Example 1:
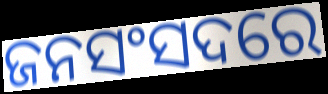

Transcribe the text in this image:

ଜନସଂସଦରେ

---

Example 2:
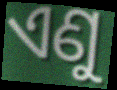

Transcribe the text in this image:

ଏଣୁ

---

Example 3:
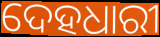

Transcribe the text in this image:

ଦେହଧାରୀ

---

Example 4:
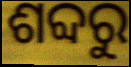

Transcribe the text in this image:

ଶବ୍ଦରୁ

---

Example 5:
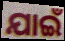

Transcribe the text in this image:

ଯାଇଁ